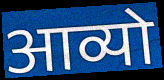
आव्यो